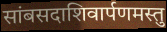
सांबसदाशिवार्पणमस्तु